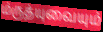
ம்ருத்யுவையும்